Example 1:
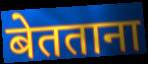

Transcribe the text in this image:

बेतताना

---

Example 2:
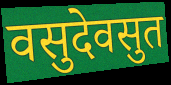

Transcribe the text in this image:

वसुदेवसुत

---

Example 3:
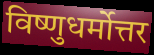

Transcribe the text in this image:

विष्णुधर्मोत्तर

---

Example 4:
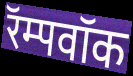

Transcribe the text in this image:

रॅम्पवॉक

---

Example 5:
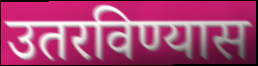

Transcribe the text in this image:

उतरविण्यास